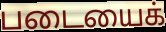
படையைக்